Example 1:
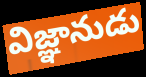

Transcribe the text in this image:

విజ్ఞానుడు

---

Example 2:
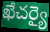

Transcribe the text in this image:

ఖేచర్యై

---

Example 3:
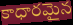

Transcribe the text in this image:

కాధారమైన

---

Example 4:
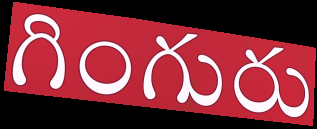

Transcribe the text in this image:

గింగురు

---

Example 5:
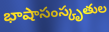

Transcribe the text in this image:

భాషాసంస్కృతుల